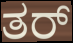
ತರ್